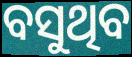
ବସୁଥିବ